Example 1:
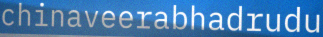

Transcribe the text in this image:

chinaveerabhadrudu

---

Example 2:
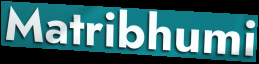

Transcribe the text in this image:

Matribhumi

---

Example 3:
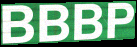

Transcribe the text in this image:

BBBP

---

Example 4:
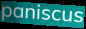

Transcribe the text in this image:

paniscus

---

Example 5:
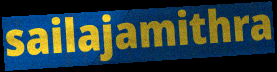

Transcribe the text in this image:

sailajamithra